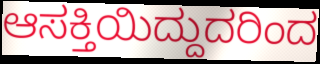
ಆಸಕ್ತಿಯಿದ್ದುದರಿಂದ